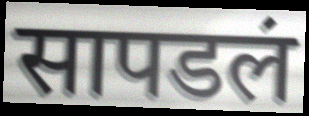
सापडलं